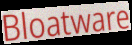
Bloatware